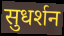
सुधर्शन